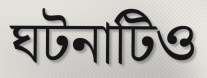
ঘটনাটিও